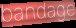
bandage